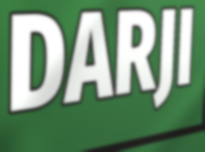
DARJI